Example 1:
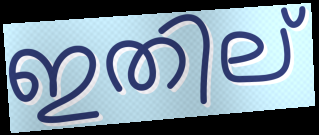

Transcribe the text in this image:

ഇതില്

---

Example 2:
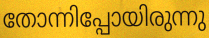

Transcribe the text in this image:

തോന്നിപ്പോയിരുന്നു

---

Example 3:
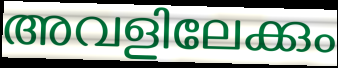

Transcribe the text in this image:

അവളിലേക്കും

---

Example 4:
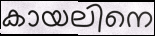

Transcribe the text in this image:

കായലിനെ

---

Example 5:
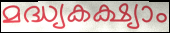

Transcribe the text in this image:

മദ്ധ്യകക്ഷ്യാം